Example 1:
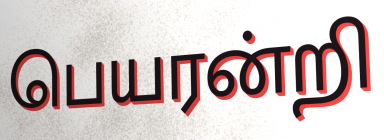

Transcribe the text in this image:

பெயரன்றி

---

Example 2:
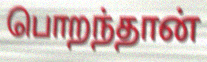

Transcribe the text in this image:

பொறந்தான்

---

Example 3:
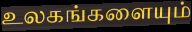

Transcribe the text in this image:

உலகங்களையும்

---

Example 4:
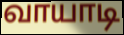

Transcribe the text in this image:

வாயாடி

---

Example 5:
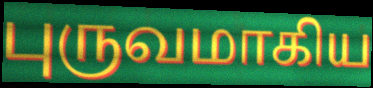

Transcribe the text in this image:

புருவமாகிய